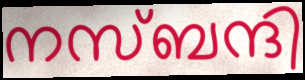
നസ്ബന്ദി